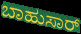
ಬಾಹುಸಾರ್